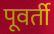
पूवर्ती